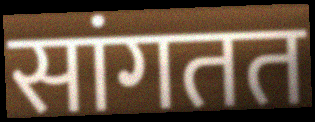
सांगतत